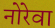
नोरेवा